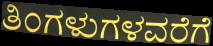
ತಿಂಗಳುಗಳವರೆಗೆ